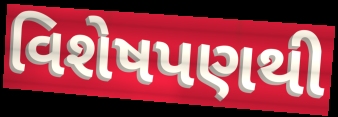
વિશેષપણથી